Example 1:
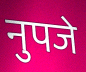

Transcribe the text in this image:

नुपजे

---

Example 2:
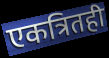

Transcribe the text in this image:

एकत्रितही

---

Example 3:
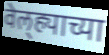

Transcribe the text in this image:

वेल्ह्याच्या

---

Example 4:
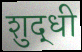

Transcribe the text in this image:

शुद्धी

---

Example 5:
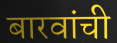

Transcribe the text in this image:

बारवांची